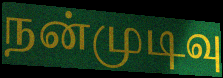
நன்முடிவு